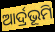
ଆର୍ଦ୍ରଭୂମି